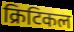
क्रिटिकल